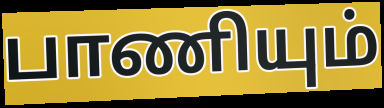
பாணியும்